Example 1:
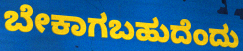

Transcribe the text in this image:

ಬೇಕಾಗಬಹುದೆಂದು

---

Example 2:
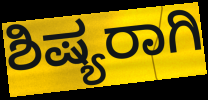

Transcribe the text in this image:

ಶಿಷ್ಯರಾಗಿ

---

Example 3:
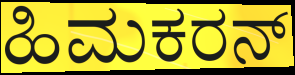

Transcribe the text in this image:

ಹಿಮಕರನ್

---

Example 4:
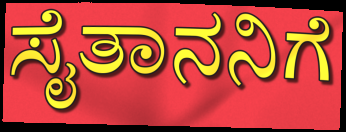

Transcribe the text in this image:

ಸೈತಾನನಿಗೆ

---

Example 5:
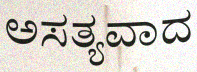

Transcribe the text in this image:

ಅಸತ್ಯವಾದ